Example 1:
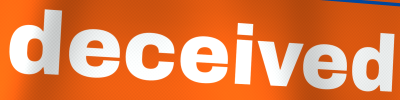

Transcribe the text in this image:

deceived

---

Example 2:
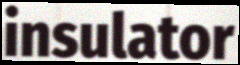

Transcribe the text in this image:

insulator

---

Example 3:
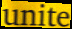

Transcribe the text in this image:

unite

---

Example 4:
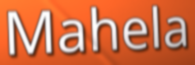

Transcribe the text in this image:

Mahela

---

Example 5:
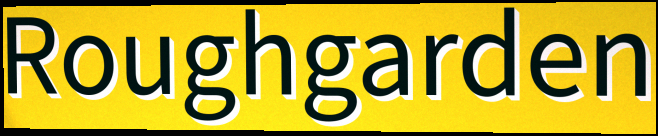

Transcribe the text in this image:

Roughgarden